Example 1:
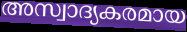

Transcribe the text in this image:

അസ്വാദ്യകരമായ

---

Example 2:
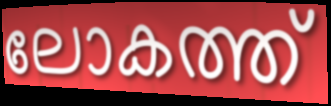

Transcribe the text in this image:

ലോകത്ത്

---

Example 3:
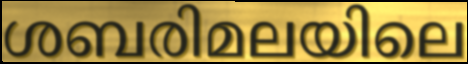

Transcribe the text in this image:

ശബരിമലയിലെ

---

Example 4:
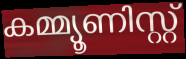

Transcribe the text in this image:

കമ്മ്യൂണിസ്റ്റ്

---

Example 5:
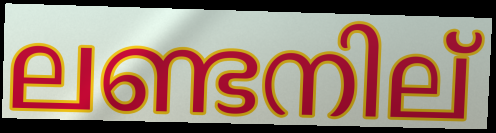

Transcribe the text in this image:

ലണ്ടനില്